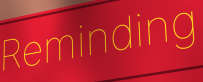
Reminding